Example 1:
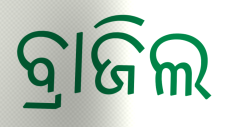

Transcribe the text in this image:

ବ୍ରାଜିଲ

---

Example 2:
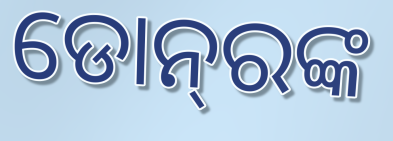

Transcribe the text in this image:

ଡୋନ୍‌ରଙ୍କ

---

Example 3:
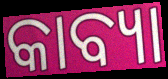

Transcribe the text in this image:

କାବ୍ୟା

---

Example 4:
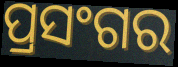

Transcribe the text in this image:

ପ୍ରସଂଗର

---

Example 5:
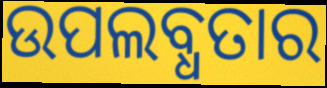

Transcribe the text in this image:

ଉପଲବ୍ଧତାର